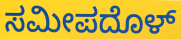
ಸಮೀಪದೊಳ್